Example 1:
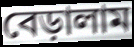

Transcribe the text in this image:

বেড়ালাম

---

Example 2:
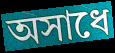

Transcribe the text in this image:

অসাধে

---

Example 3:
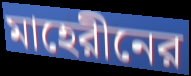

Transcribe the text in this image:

মাহেরীনের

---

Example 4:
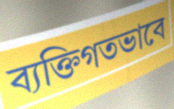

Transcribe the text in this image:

ব্যক্তিগতভাবে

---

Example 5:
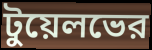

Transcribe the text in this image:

টুয়েলভের